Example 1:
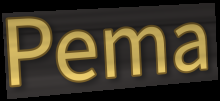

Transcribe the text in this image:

Pema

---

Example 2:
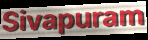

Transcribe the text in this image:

Sivapuram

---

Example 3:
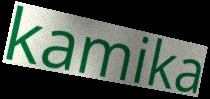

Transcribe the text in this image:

kamika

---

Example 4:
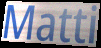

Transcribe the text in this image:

Matti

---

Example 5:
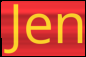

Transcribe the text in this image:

Jen